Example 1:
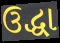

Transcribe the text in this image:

ઉદ્ધા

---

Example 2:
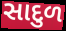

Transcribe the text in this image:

સાદુળ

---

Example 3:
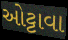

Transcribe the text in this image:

ઓટ્ટાવા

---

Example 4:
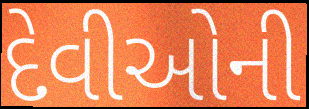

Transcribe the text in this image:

દેવીઓની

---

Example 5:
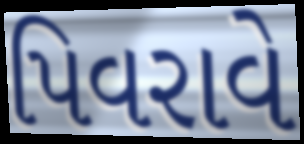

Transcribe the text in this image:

પિવરાવે